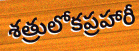
శత్రులోకప్రహారీ